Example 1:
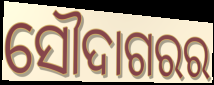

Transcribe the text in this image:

ସୌଦାଗରର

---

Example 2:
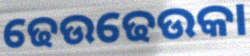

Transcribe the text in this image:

ଢେଉଢେଉକା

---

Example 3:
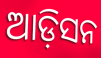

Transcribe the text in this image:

ଆଡ଼ିସନ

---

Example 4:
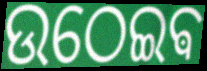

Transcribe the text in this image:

ଉଠେଇଵ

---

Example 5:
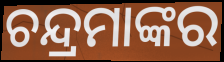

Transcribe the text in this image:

ଚନ୍ଦ୍ରମାଙ୍କର